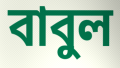
বাবুল